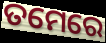
ତମେରେ